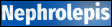
Nephrolepis